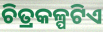
ଚିତ୍ରକଳ୍ପଟିଏ